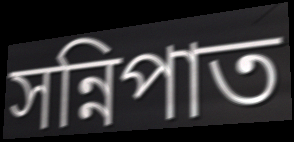
সন্নিপাত